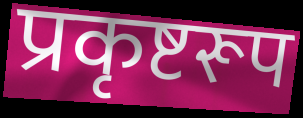
प्रकृष्टरूप